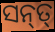
ସନ୍‌ତ୍